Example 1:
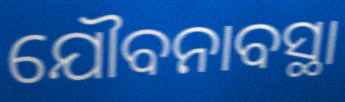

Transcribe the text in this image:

ଯୌବନାବସ୍ଥା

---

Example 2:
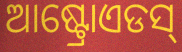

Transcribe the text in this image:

ଆଷ୍ଟ୍ରୋଏଡସ୍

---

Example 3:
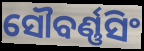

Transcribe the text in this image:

ସୌବର୍ଣ୍ଣସିଂ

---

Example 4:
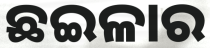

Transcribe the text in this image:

ଛଇଳାର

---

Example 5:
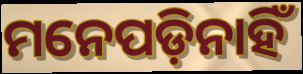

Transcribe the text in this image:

ମନେପଡ଼ିନାହିଁ